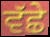
ਵੱਛੇ